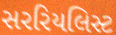
સરરિયલિસ્ટ